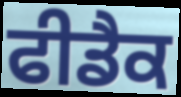
ਫੀਡੈਕ